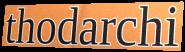
thodarchi